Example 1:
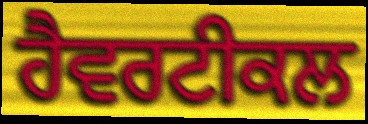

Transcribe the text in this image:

ਹੈਵਰਟੀਕਲ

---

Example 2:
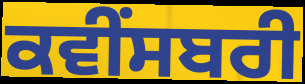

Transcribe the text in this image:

ਕਵੀਂਸਬਰੀ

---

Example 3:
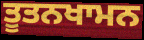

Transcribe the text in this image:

ਤੂਤਨਖਾਮਨ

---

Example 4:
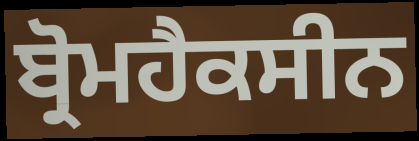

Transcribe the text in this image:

ਬ੍ਰੋਮਹੈਕਸੀਨ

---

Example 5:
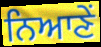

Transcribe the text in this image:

ਨਿਆਣੇਂ